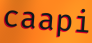
caapi